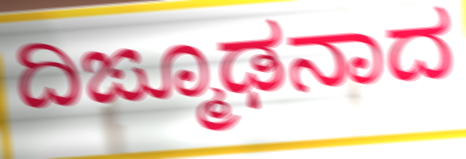
ದಿಙ್ಮೂಢನಾದ